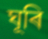
ঘূৰি